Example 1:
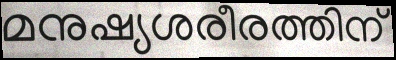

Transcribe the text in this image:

മനുഷ്യശരീരത്തിന്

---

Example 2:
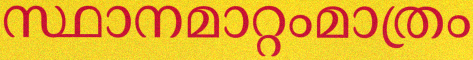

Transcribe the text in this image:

സ്ഥാനമാറ്റംമാത്രം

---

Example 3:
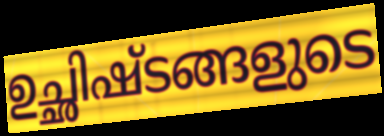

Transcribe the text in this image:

ഉച്ഛിഷ്ടങ്ങളുടെ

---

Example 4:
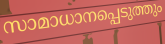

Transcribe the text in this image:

സാമാധാനപ്പെടുത്തും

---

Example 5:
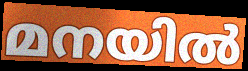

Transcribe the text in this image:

മനയിൽ